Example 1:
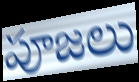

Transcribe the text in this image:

పూజలు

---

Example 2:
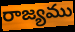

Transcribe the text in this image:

రాజ్యము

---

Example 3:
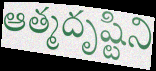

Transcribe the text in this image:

ఆత్మదృష్టిని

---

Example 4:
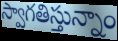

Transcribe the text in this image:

స్వాగతిస్తున్నాం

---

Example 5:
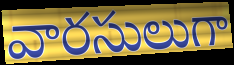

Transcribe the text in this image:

వారసులుగా